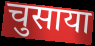
चुसाया